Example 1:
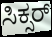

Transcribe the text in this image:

ಸಿಕ್ಸರ್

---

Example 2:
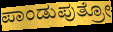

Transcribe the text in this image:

ಪಾಂಡುಪುತ್ರೋ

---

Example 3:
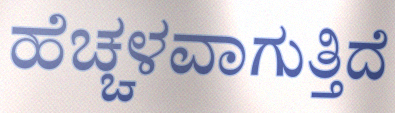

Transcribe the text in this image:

ಹೆಚ್ಚಳವಾಗುತ್ತಿದೆ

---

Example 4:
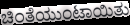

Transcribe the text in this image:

ಚಿಂತೆಯುಂಟಾಯಿತು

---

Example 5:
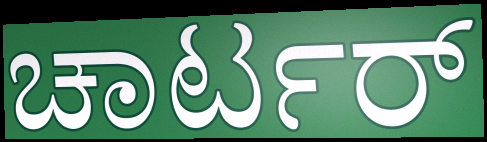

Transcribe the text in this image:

ಚಾರ್ಟರ್